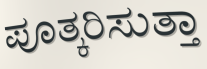
ಪೂತ್ಕರಿಸುತ್ತಾ